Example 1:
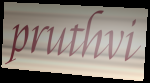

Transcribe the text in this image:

pruthvi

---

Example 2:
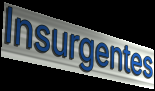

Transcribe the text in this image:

Insurgentes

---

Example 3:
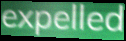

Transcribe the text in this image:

expelled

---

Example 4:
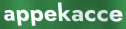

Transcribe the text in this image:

appekacce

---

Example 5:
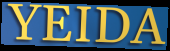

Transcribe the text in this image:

YEIDA